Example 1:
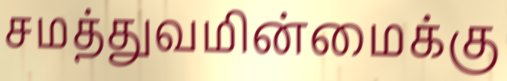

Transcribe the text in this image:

சமத்துவமின்மைக்கு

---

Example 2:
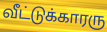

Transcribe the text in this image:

வீட்டுக்காரரு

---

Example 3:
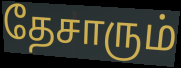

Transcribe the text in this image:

தேசாரும்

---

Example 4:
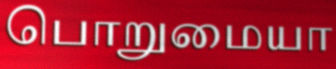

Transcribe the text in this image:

பொறுமையா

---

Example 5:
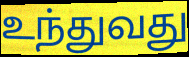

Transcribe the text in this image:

உந்துவது